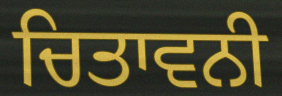
ਚਿਤਾਵਨੀ